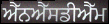
ਐੱਨਐੱਸਡੀਐੱਮ